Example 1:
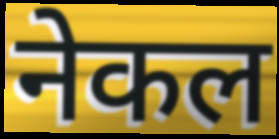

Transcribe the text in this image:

नेकल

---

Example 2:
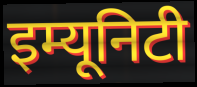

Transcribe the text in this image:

इम्‍यूनिटी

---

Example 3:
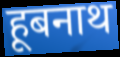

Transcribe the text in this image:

हूबनाथ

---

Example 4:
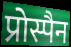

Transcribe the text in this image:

प्रोस्पैन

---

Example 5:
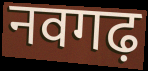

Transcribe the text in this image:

नवगढ़